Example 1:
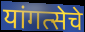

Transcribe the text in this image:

यांगत्सेचे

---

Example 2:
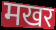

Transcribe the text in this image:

मखर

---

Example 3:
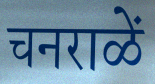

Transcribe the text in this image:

चनराळें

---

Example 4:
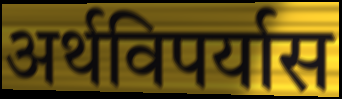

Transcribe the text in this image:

अर्थविपर्यास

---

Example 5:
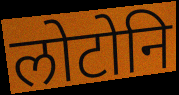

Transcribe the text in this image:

लोटोनि